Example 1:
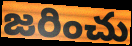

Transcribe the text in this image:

జరించు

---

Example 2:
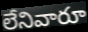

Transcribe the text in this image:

లేనివారూ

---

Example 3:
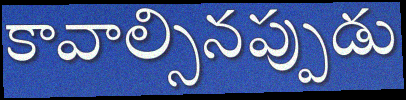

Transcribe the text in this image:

కావాల్సినప్పుడు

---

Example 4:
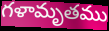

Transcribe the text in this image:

గళామృతము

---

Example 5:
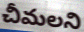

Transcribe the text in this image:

చీమలని